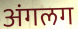
अंगलग